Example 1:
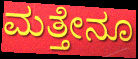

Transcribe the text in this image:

ಮತ್ತೇನೂ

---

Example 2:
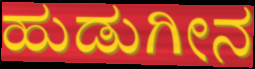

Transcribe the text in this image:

ಹುಡುಗೀನ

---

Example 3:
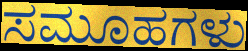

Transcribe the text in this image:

ಸಮೂಹಗಳು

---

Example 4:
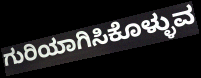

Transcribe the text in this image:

ಗುರಿಯಾಗಿಸಿಕೊಳ್ಳುವ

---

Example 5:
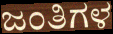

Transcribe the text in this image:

ಜಂತಿಗಳ